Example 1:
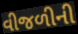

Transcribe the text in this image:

વીજળીની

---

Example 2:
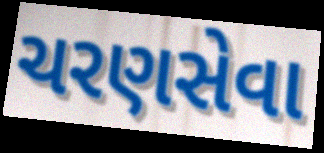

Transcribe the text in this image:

ચરણસેવા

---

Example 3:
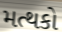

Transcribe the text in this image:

મત્થકો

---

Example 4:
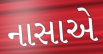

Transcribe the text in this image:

નાસાએ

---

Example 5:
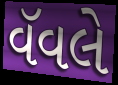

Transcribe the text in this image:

વૅવલે